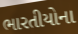
ભારતીયોના